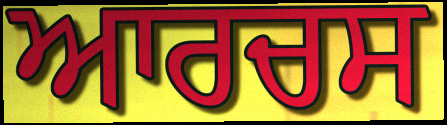
ਆਰਚਸ